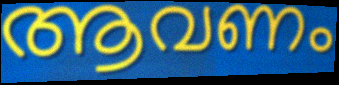
ആവണം